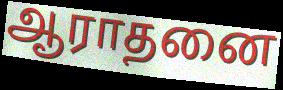
ஆராதனை